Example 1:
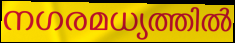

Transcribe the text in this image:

നഗരമധ്യത്തിൽ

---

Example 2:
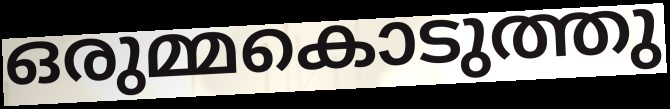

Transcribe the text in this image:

ഒരുമ്മകൊടുത്തു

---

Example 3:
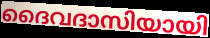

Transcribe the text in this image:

ദൈവദാസിയായി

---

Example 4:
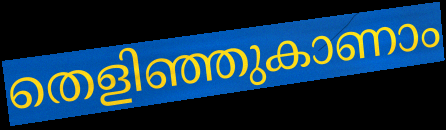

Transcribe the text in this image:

തെളിഞ്ഞുകാണാം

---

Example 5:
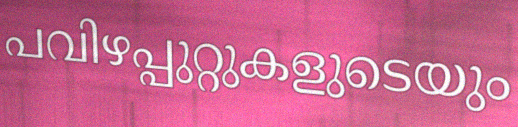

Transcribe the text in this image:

പവിഴപ്പുറ്റുകളുടെയും